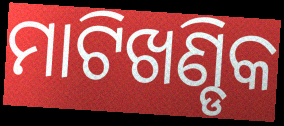
ମାଟିଖଣ୍ଡିକ